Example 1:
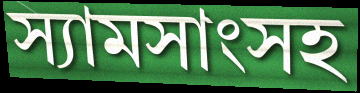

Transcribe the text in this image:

স্যামসাংসহ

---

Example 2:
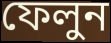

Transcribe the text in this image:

ফেলুন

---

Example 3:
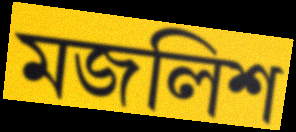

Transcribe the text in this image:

মজলিশ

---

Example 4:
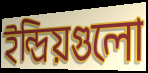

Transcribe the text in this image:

ইন্দ্রিয়গুলো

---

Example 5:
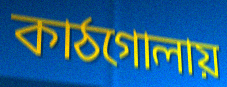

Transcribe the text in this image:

কাঠগোলায়